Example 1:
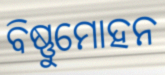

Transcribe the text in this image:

ବିଷ୍ଣୁମୋହନ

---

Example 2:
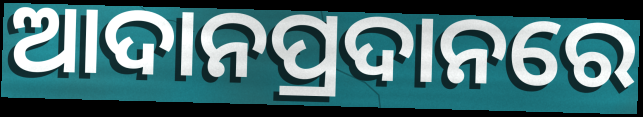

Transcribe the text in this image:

ଆଦାନପ୍ରଦାନରେ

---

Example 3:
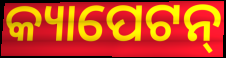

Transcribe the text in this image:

କ୍ୟାପେଟନ୍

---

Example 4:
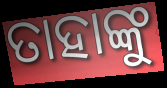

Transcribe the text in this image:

ତାହାଙ୍କୁ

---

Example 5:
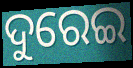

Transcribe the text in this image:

ଦୁରେଇ